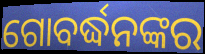
ଗୋବର୍ଦ୍ଧନଙ୍କର